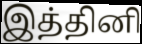
இத்தினி